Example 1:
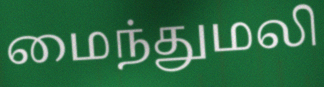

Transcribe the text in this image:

மைந்துமலி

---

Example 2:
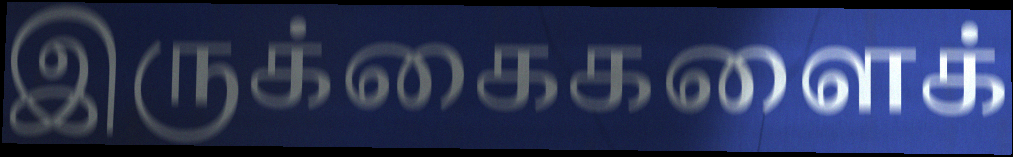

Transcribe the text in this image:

இருக்கைகளைக்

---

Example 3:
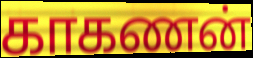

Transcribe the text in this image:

காகணன்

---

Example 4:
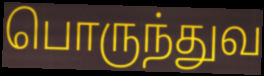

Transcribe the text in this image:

பொருந்துவ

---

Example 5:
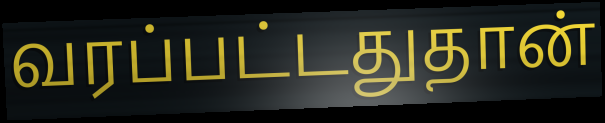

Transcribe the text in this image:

வரப்பட்டதுதான்